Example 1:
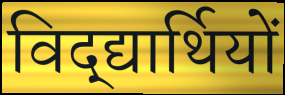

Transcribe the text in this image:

विद्द्यार्थियों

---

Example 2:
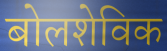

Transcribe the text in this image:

बोलशेविक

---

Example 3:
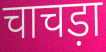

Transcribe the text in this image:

चाचड़ा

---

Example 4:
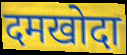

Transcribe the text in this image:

दमखोदा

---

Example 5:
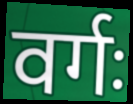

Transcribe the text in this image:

वर्गः